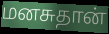
மனசுதான்